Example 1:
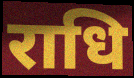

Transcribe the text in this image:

राधि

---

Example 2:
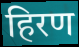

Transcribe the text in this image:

हिरण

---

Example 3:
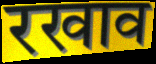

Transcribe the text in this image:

रखाव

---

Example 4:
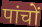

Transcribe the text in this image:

पांचों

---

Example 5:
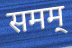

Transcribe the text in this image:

समम्